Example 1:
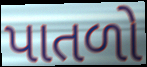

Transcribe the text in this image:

પાતળો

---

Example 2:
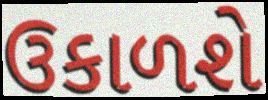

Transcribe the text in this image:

ઉકાળશે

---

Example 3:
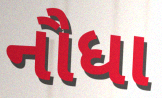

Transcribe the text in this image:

નૌધા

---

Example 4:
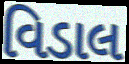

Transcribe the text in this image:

વિડાલ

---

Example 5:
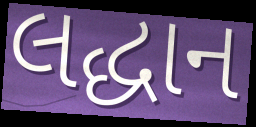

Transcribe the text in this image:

લદ્ધાન